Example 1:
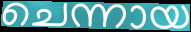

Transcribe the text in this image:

ചെന്നായ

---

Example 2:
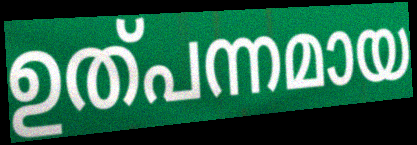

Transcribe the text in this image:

ഉത്പന്നമായ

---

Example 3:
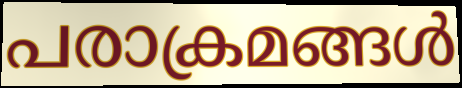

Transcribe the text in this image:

പരാക്രമങ്ങൾ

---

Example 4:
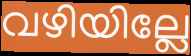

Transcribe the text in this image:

വഴിയില്ലേ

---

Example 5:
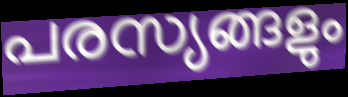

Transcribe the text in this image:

പരസ്യങ്ങളും